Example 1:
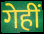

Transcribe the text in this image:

गेहीं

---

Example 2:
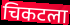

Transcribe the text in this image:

चिकटला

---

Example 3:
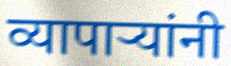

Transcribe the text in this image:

व्यापाऱ्यांनी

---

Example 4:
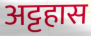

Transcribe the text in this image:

अट्टहास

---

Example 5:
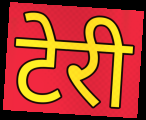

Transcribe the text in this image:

टेरी